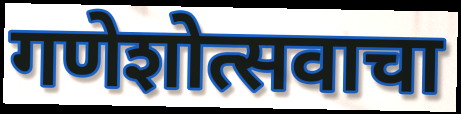
गणेशोत्सवाचा